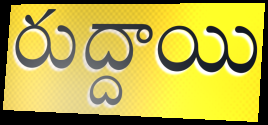
రుద్దాయి